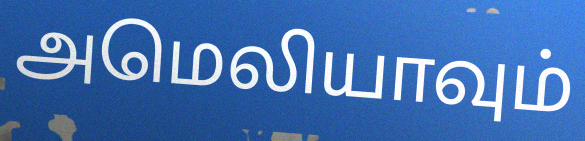
அமெலியாவும்